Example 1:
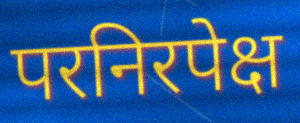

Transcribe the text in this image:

परनिरपेक्ष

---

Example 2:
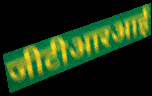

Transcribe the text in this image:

जीटीआरआई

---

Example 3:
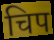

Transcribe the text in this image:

चिप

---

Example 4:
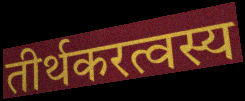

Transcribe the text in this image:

तीर्थकरत्वस्य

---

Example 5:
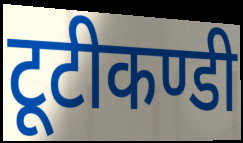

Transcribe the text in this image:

टूटीकण्डी